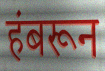
हंबरून